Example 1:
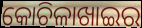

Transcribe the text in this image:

କୋଚିଳାଖାଇର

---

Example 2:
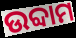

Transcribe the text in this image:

ଉବ୍ଦାମ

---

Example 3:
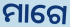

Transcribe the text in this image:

ମାଗେ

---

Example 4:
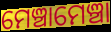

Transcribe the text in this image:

ମେଞ୍ଚାମେଞ୍ଚା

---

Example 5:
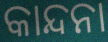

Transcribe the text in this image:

କାନ୍ଦନା